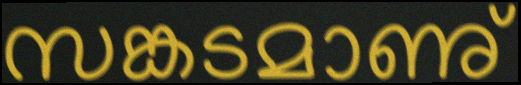
സങ്കടമാണു്